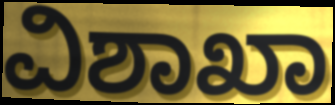
ವಿಶಾಖಾ